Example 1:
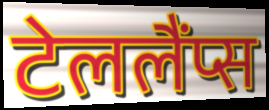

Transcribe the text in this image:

टेललैंप्स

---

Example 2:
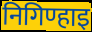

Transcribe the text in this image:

निगिण्हाइ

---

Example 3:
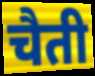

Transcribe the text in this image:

चैती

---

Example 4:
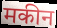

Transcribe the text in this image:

मकीन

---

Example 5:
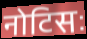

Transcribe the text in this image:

नोटिसः